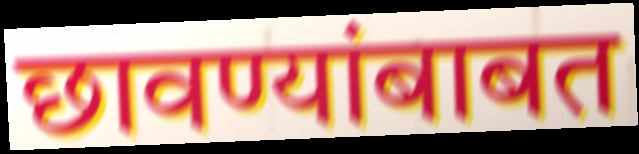
छावण्यांबाबत